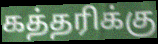
கத்தரிக்கு